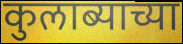
कुलाब्याच्या